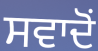
ਸਵਾਦੋਂ